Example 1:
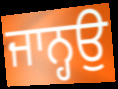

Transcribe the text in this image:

ਜਾਨ੍ਹਉ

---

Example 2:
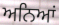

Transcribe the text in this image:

ਅਨਿਆਂ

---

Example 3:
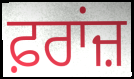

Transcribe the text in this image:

ਫ਼ਰਾਂਜ਼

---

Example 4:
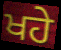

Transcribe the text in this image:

ਖਹੇ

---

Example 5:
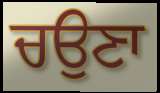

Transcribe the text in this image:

ਚਉਣਾ